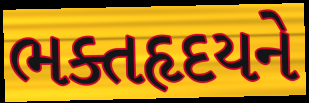
ભક્તહૃદયને